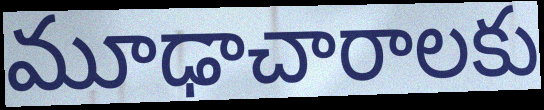
మూఢాచారాలకు